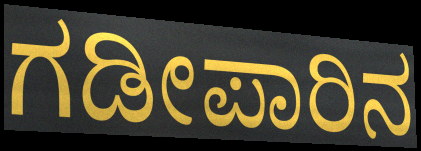
ಗಡೀಪಾರಿನ